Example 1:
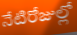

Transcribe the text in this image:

నేటిరోజుల్లో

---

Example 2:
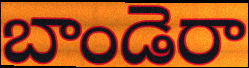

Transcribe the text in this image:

బాండెరా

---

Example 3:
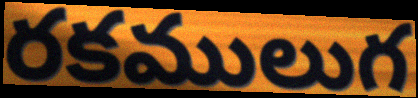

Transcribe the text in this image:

రకములుగ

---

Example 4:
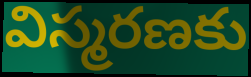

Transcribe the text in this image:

విస్మరణకు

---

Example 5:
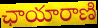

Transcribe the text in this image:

ఛాయారాణి